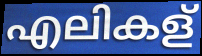
എലികള്